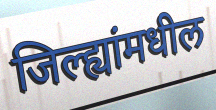
जिल्ह्यांमधील